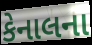
કેનાલના